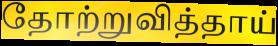
தோற்றுவித்தாய்